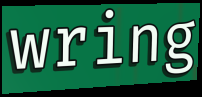
wring